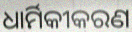
ଧାର୍ମିକୀକରଣ